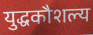
युद्धकौशल्य